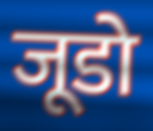
जूडो